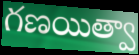
గణయిత్వా